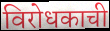
विरोधकाची